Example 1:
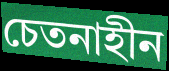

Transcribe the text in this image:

চেতনাহীন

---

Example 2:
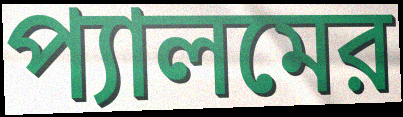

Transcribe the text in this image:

প্যালমের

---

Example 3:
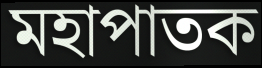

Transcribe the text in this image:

মহাপাতক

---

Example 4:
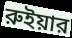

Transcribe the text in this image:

রুইয়ার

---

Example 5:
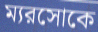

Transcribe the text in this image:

ম্যরসোকে